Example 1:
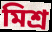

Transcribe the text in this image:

মিশ্র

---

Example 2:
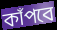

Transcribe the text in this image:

কাঁপবে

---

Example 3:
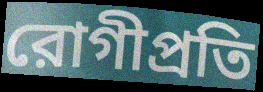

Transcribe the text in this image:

রোগীপ্রতি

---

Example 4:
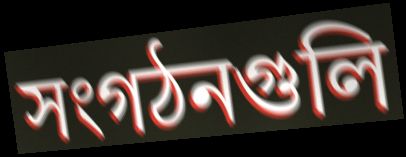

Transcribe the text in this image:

সংগঠনগুলি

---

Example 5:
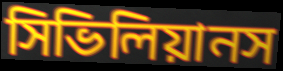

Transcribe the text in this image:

সিভিলিয়ানস